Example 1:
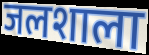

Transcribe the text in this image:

जलशाला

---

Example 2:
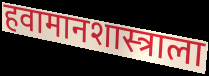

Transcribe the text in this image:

हवामानशास्त्राला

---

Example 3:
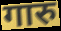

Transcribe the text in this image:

गारु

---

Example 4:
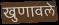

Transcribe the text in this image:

खुणावले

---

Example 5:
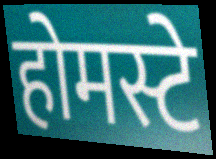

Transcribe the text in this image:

होमस्टे